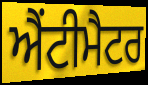
ਐਂਟੀਮੈਟਰ